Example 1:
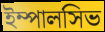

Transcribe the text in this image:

ইম্পালসিভ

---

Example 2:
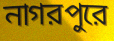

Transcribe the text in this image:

নাগরপুরে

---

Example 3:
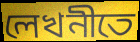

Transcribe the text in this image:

লেখনীতে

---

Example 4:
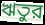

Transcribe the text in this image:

ঋতুর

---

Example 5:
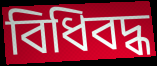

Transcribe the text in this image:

বিধিবদ্ধ